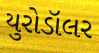
યુરોડૉલર